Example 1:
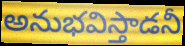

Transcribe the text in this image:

అనుభవిస్తాడనీ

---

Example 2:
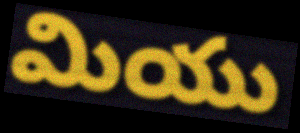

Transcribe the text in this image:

మియు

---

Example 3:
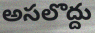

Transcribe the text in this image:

అసలొద్దు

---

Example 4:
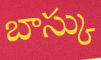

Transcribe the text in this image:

బాస్కు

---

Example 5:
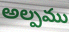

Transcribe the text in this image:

అల్పము